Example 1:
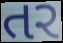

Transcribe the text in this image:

તર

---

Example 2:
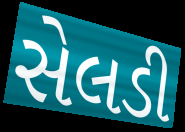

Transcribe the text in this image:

સેલડી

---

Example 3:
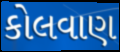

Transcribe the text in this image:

કોલવાણ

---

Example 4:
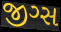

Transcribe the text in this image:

જીગ્સ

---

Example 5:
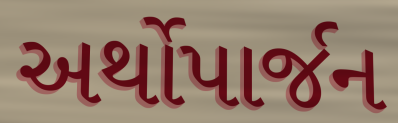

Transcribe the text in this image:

અર્થોપાર્જન